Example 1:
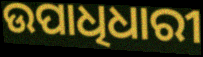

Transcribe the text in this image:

ଉପାଧିଧାରୀ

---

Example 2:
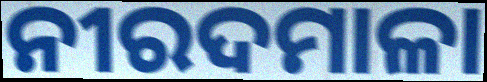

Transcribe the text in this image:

ନୀରଦମାଳା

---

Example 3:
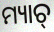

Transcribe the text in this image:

ମ୍ୟାଚ୍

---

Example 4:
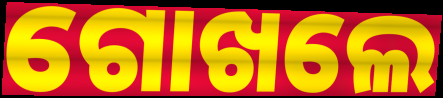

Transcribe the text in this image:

ଗୋଖଲେ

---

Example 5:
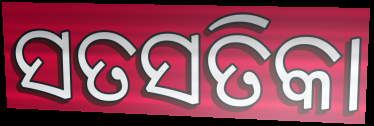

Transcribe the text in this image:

ସତସତିକା